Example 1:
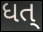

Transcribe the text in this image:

ધત્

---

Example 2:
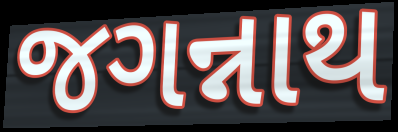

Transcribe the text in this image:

જગન્નાથ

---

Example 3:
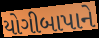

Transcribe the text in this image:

યોગીબાપાને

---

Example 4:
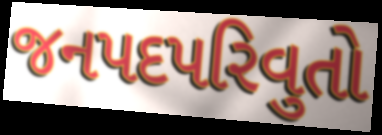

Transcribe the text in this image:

જનપદપરિવુતો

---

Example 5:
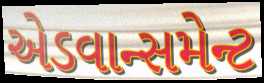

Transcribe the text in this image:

એડવાન્સમેન્ટ